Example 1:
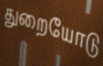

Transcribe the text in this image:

துறையோடு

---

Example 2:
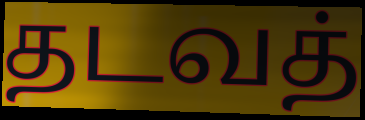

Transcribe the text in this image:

தடவத்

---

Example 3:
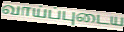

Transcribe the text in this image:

வாய்ப்புடைய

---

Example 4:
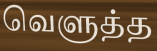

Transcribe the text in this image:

வெளுத்த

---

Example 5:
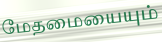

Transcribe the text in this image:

மேதமையையும்